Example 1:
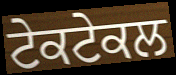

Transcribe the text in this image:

ਟੇਕਟੇਕਲ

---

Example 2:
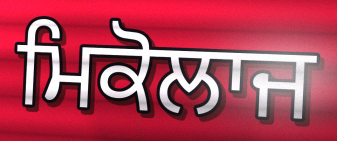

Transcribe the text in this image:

ਮਿਕੋਲਾਜ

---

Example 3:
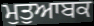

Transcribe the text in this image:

ਮੁਤੁਆਬਕ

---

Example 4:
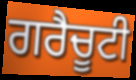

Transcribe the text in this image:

ਗਰੈਚੂਟੀ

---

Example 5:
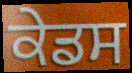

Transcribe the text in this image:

ਕੇਡਸ